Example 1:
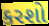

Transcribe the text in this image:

કરશો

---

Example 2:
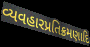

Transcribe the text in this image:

વ્યવહારપ્રતિક્રમણાદિ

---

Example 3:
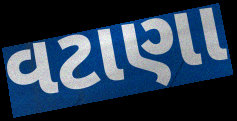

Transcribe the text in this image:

વટાણા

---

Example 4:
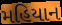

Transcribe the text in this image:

મહિયાન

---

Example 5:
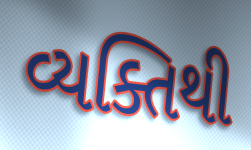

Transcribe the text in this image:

વ્યક્તિથી